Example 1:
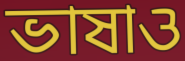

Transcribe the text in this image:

ভাষাও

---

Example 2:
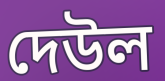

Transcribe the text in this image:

দেউল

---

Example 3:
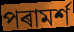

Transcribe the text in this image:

পৰামৰ্শ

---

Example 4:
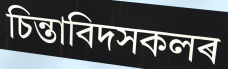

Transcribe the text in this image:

চিন্তাবিদসকলৰ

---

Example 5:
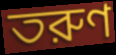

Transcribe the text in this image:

তৰুণ